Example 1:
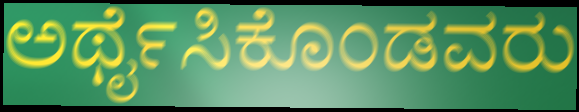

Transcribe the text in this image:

ಅರ್ಥೈಸಿಕೊಂಡವರು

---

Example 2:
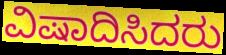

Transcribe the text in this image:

ವಿಷಾದಿಸಿದರು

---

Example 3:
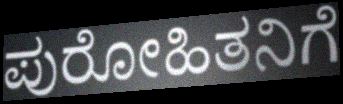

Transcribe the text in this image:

ಪುರೋಹಿತನಿಗೆ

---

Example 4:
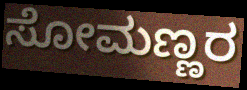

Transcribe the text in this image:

ಸೋಮಣ್ಣರ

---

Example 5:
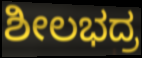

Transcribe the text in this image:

ಶೀಲಭದ್ರ